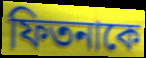
ফিতনাকে